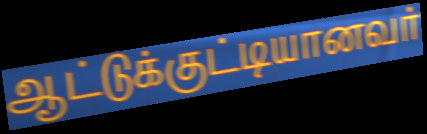
ஆட்டுக்குட்டியானவர்